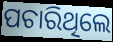
ପଚାରିଥିଲେ